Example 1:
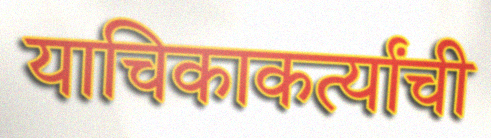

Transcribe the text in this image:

याचिकाकर्त्यांची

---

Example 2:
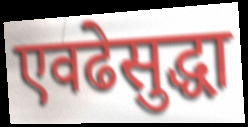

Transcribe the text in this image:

एवढेसुद्धा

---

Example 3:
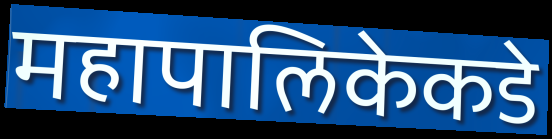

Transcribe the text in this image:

महापालिकेकडे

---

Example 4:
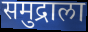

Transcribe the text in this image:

समुद्राला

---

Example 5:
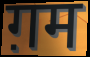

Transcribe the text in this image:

ग़म